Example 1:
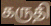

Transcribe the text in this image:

கருதி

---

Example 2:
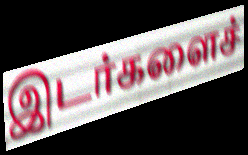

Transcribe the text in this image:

இடர்களைச்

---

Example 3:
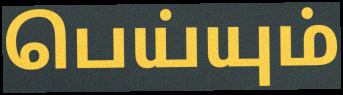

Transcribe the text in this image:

பெய்யும்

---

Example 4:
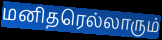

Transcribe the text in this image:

மனிதரெல்லாரும்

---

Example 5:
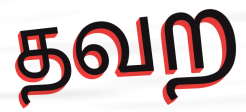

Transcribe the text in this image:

தவற